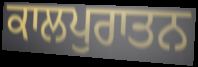
ਕਾਲਪੁਰਾਤਨ